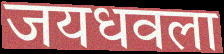
जयधवला